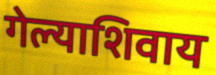
गेल्याशिवाय